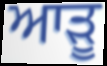
ਆੜੂ